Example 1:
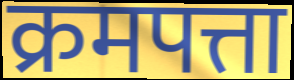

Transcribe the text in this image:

क्रमपत्ता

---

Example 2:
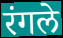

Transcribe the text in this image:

रंगले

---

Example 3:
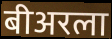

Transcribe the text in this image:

बीअरला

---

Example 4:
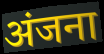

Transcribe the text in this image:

अंजना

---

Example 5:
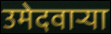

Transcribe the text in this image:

उमेदवार्‍या